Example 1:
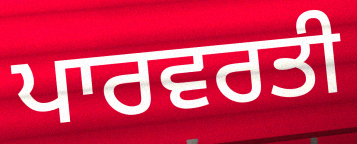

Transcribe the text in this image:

ਪਾਰਵਰਤੀ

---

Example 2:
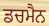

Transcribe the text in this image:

ਡਚਮੈਨ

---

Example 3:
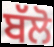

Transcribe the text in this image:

ਬੱਲੋ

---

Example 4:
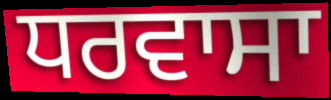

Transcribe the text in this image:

ਧਰਵਾਸਾ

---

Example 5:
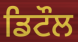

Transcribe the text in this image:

ਡਿਟੌਲ